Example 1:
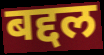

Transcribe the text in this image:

बद्दल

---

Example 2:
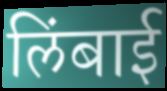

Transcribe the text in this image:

लिंबाई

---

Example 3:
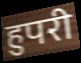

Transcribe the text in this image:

हुपरी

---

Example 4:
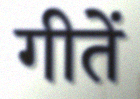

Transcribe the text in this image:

गीतें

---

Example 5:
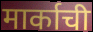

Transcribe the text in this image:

मार्काची